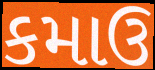
કમાઉ